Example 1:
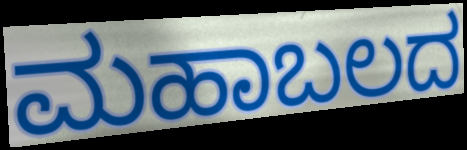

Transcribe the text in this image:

ಮಹಾಬಲದ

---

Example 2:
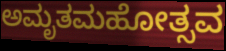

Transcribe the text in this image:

ಅಮೃತಮಹೋತ್ಸವ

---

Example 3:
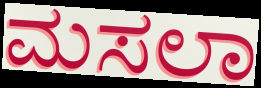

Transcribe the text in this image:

ಮಸಲಾ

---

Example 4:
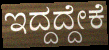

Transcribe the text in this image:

ಇದ್ದದ್ದೇಕೆ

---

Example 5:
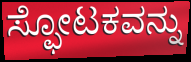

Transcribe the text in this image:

ಸ್ಫೋಟಕವನ್ನು